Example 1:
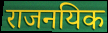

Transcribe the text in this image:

राजनयिक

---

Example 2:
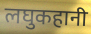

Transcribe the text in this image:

लघुकहानी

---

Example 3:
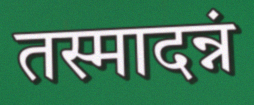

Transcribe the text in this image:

तस्मादन्नं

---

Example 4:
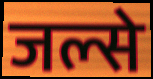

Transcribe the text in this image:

जल्से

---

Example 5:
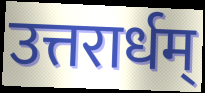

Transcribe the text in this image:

उत्तरार्धम्